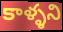
కాళ్ళని